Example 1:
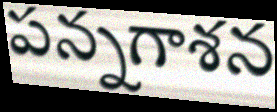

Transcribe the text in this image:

పన్నగాశన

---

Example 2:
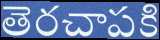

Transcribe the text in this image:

తెరచాపకి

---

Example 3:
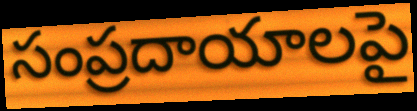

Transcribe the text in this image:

సంప్రదాయాలపై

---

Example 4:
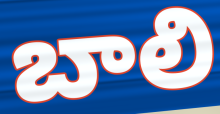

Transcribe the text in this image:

బాలి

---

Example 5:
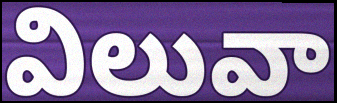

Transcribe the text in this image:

విలువా